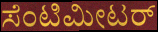
ಸೆಂಟಿಮೀಟರ್